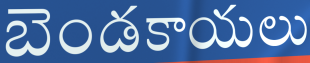
బెండకాయలు